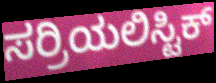
ಸರ್ರಿಯಲಿಸ್ಟಿಕ್